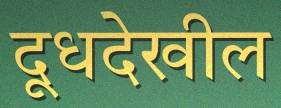
दूधदेखील